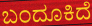
ಬಂದೂಕಿದೆ